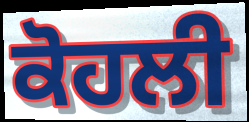
ਕੋਹਲੀ